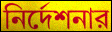
নির্দেশনার